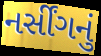
નર્સીંગનું